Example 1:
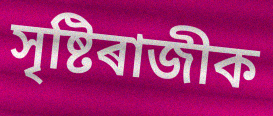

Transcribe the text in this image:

সৃষ্টিৰাজীক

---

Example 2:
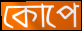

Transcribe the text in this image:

কোপে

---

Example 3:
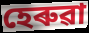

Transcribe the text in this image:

হেৰুৱা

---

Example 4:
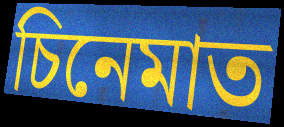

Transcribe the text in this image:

চিনেমাত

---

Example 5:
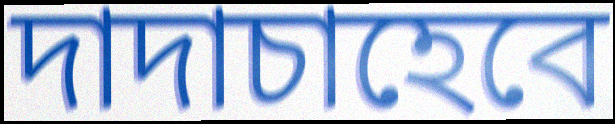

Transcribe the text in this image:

দাদাচাহেবে